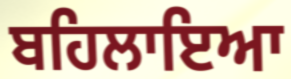
ਬਹਿਲਾਇਆ